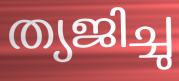
ത്യജിച്ചു